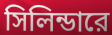
সিলিন্ডারে